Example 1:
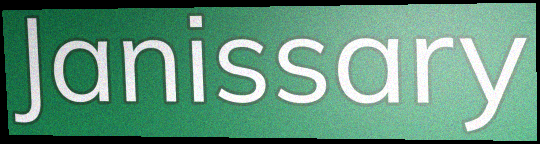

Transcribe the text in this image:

Janissary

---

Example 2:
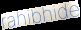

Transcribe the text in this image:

rahibhide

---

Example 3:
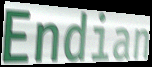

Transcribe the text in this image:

Endian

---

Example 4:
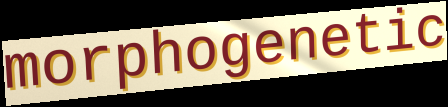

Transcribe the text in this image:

morphogenetic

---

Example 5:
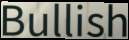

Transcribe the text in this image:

Bullish